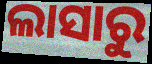
ଲାସାରୁ